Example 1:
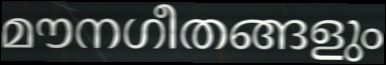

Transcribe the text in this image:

മൗനഗീതങ്ങളും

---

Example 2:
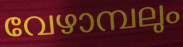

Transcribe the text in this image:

വേഴാമ്പലും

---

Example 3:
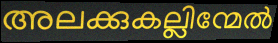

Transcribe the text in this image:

അലക്കുകല്ലിന്മേൽ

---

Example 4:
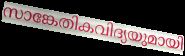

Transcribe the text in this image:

സാങ്കേതികവിദ്യയുമായി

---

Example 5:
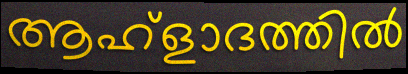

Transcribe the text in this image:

ആഹ്ളാദത്തിൽ